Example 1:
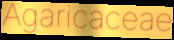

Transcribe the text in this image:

Agaricaceae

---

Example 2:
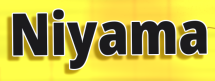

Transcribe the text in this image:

Niyama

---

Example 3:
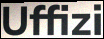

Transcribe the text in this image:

Uffizi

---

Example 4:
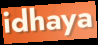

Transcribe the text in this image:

idhaya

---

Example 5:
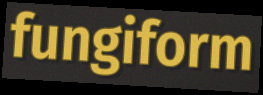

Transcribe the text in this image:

fungiform